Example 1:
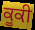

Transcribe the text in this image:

ਕੂਕੀ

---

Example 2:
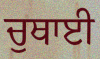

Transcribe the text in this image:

ਚੁਥਾਈ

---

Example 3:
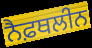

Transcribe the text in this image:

ਨੈਫ਼ਥਲੀਨ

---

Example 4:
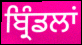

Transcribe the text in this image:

ਬ੍ਰਿੰਡਲਾਂ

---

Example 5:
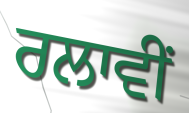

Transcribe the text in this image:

ਰਲਾਵੀਂ